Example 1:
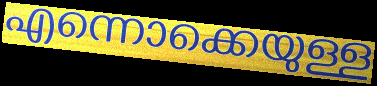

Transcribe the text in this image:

എന്നൊക്കെയുള്ള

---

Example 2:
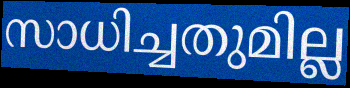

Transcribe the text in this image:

സാധിച്ചതുമില്ല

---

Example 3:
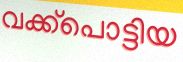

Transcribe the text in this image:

വക്ക്പൊട്ടിയ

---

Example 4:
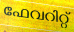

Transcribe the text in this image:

ഫേവറിറ്റ്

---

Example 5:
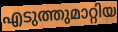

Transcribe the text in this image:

എടുത്തുമാറ്റിയ